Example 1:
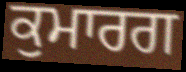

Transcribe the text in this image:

ਕੁਮਾਰਗ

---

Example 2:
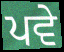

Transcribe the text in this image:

ਪਵੇ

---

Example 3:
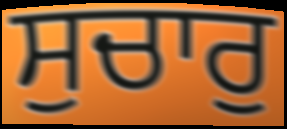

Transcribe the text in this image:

ਸੁਚਾਰੁ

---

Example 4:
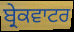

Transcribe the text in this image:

ਬ੍ਰੇਕਵਾਟਰ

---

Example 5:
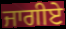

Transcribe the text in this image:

ਜਾਗੀਏ